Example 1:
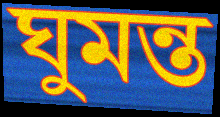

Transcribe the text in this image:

ঘুমন্ত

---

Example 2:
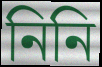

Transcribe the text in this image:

নিনি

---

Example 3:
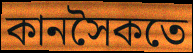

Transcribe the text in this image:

কানসৈকতে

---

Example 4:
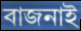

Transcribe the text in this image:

বাজনাই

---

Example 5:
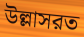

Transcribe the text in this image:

উল্লাসরত